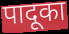
पादूका